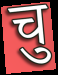
चु